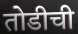
तोडीची